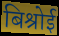
बिश्रोई